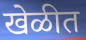
खेळीत